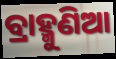
ବ୍ରାହ୍ମୁଣିଆ